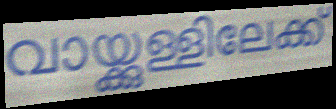
വായ്ക്കുള്ളിലേക്ക്